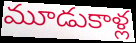
మూడుకాళ్ల